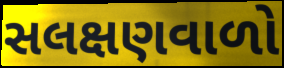
સલક્ષણવાળો